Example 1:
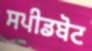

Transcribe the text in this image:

ਸਪੀਡਬੋਟ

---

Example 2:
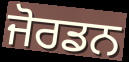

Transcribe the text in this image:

ਜੋਰਡਨ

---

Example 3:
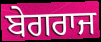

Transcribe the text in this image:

ਬੇਗਰਾਜ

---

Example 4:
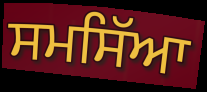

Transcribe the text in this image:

ਸਮਸਿੱਆ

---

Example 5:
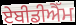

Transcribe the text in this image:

ਏਬੀਡੀਐੱਮ